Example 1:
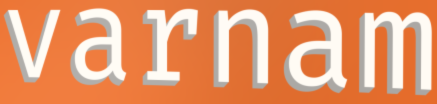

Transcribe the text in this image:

varnam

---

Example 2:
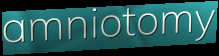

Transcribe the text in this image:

amniotomy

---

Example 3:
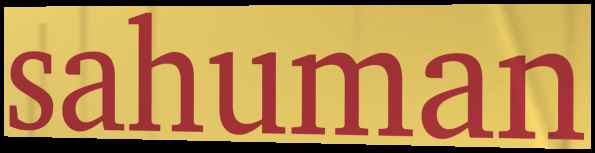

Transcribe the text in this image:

sahuman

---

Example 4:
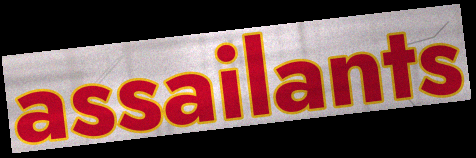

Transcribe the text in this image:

assailants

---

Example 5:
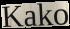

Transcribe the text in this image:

Kako